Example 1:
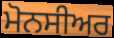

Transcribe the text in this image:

ਮੋਨਸੀਅਰ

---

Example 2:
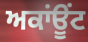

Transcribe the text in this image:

ਅਕਾਂਊਂਟ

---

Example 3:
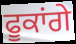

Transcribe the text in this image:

ਫੂਕਾਂਗੇ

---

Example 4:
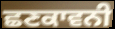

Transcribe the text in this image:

ਛਣਕਾਵਨੀ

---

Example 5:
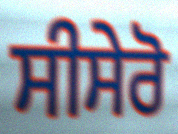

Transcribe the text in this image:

ਸੀਸੇਰੋ